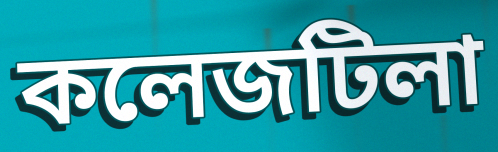
কলেজটিলা